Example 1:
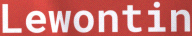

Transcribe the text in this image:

Lewontin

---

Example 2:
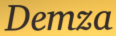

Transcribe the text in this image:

Demza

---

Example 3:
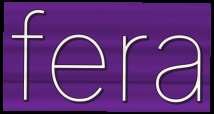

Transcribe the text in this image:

fera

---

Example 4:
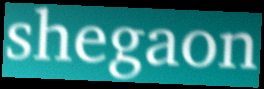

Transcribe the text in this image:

shegaon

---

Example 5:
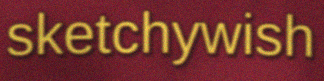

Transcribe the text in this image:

sketchywish